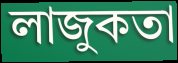
লাজুকতা